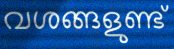
വശങ്ങളുണ്ട്